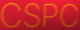
CSPC